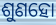
ଶୁଣହୋ